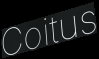
Coitus